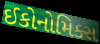
ઈકોનોમિક્સ